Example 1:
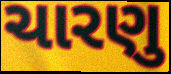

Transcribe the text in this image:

ચારણુ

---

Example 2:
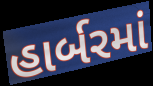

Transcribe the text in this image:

હાર્બરમાં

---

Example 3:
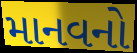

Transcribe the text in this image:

માનવનો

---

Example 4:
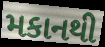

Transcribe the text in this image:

મકાનથી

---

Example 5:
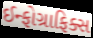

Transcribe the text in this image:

ઈન્ફોગ્રાફિક્સ